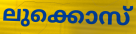
ലുക്കൊസ്